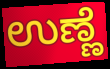
ಉಣ್ಣೆ